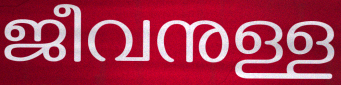
ജീവനുള്ള